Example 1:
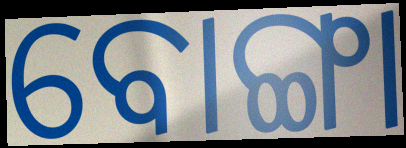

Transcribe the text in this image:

ବୋଙ୍ଗା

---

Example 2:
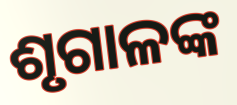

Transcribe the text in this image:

ଶୃଗାଳଙ୍କ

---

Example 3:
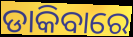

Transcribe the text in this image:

ଡାକିବାରେ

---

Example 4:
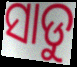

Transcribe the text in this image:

ସାଡୁ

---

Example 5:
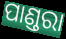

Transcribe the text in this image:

ପାଣ୍ଡରା